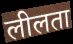
लीलता